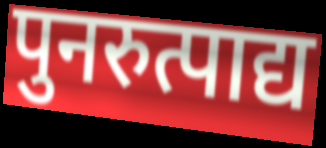
पुनरुत्पाद्य